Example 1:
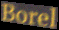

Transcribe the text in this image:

Borel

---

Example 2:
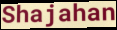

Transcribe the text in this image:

Shajahan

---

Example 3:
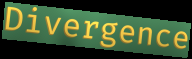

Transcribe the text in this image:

Divergence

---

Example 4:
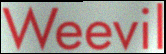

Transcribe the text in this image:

Weevil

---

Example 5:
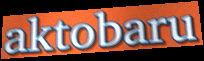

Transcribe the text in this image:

aktobaru